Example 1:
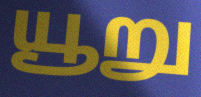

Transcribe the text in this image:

யூறு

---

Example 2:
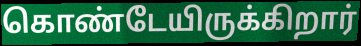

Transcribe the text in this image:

கொண்டேயிருக்கிறார்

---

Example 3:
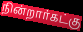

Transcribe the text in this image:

நின்றார்கட்கு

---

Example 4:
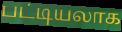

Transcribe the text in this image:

பட்டியலாக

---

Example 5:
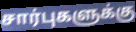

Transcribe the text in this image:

சார்புகளுக்கு